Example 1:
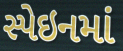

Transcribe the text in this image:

સ્પેઇનમાં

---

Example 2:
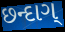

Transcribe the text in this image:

છન્દાગ્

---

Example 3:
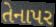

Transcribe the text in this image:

તેનાપર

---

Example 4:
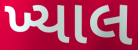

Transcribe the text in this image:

ખ્યાલ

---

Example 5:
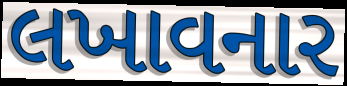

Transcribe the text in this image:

લખાવનાર